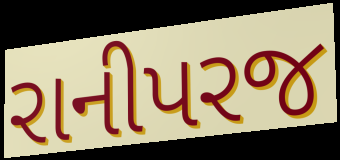
રાનીપરજ